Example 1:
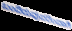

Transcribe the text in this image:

ಬಂದಿರುವುದರಿಂದಾಗಿ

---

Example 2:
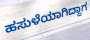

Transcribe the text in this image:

ಹಸುಳೆಯಾಗಿದ್ದಾಗ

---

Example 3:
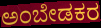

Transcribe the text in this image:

ಅಂಬೇಡಕರ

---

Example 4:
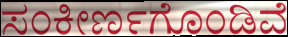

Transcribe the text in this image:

ಸಂಕೀರ್ಣಗೊಂಡಿವೆ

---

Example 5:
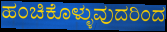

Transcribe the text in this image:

ಹಂಚಿಕೊಳ್ಳುವುದರಿಂದ